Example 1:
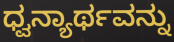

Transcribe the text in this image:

ಧ್ವನ್ಯಾರ್ಥವನ್ನು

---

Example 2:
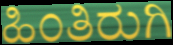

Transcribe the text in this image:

ಹಿಂತಿರುಗಿ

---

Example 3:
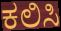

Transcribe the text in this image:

ಕಲಿಸಿ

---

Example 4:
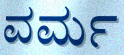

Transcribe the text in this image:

ವರ್ಮ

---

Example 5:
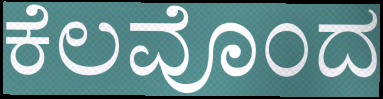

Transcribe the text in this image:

ಕೆಲವೊಂದ